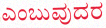
ಎಂಬುವುದರ